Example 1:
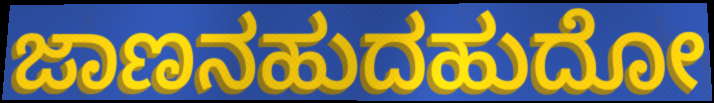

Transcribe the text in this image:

ಜಾಣನಹುದಹುದೋ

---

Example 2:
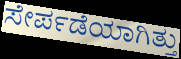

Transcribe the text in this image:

ಸೇರ್ಪಡೆಯಾಗಿತ್ತು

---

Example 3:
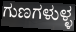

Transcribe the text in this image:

ಗುಣಗಳುಳ್ಳ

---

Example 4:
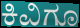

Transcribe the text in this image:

ಕಿವಿಗೂ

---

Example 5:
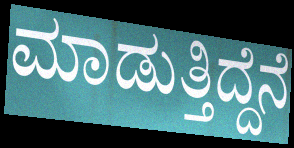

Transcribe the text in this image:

ಮಾಡುತ್ತಿದ್ದೆನೆ